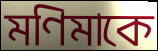
মণিমাকে